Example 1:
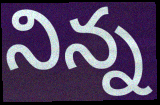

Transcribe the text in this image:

నిన్న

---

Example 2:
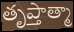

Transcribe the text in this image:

తృప్తాత్మా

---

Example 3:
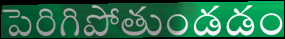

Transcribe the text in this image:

పెరిగిపోతుండడం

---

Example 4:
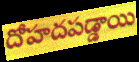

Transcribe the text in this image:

దోహదపడ్డాయి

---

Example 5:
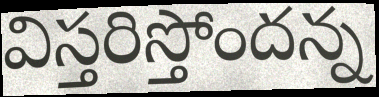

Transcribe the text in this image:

విస్తరిస్తోందన్న